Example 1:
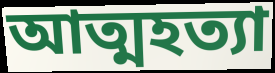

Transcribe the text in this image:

আত্মহত্যা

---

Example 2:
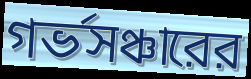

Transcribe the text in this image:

গর্ভসঞ্চারের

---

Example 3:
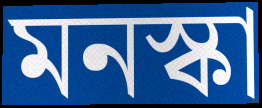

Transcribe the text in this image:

মনস্কা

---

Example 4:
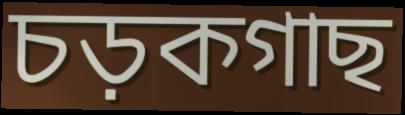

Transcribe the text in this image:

চড়কগাছ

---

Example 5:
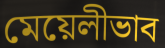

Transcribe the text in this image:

মেয়েলীভাব